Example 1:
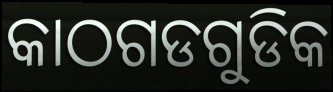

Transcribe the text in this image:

କାଠଗଡଗୁଡିକ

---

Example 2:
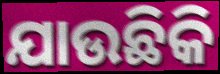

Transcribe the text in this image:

ଯାଉଛିକି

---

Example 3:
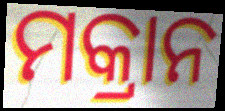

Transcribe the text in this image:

ମକ୍ରାନ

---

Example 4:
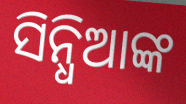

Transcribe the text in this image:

ସିନ୍ଧିଆଙ୍କ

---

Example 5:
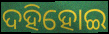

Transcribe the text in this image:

ଦହିହୋଇ